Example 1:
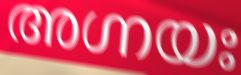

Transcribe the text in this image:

അഗ്നയഃ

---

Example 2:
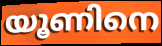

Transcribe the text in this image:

യൂണിനെ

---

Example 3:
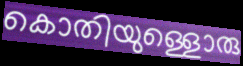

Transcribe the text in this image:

കൊതിയുള്ളൊരു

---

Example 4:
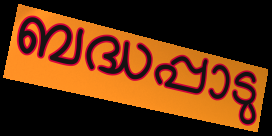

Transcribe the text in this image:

ബദ്ധപ്പാടു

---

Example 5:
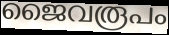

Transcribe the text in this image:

ജൈവരൂപം